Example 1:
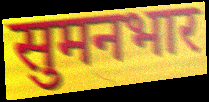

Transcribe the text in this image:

सुमनभार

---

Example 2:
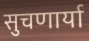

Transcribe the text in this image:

सुचणार्या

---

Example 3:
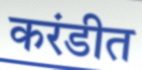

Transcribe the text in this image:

करंडीत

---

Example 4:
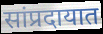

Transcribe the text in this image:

सांप्रदायात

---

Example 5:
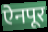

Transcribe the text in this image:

ऐनपूर